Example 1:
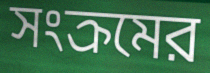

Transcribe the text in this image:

সংক্রমের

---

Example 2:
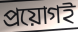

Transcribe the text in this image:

প্রয়োগই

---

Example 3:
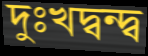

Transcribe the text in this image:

দুঃখদ্বন্দ্ব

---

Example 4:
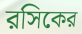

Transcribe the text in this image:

রসিকের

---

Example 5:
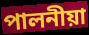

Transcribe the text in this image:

পালনীয়া